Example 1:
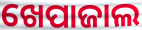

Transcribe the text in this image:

ଖେପାଜାଲ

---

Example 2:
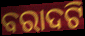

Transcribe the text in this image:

ବରାଦଟି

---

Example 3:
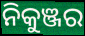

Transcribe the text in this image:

ନିକୁଞ୍ଜର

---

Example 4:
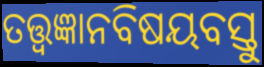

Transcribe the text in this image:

ତତ୍ତ୍ୱଜ୍ଞାନବିଷୟବସ୍ତୁ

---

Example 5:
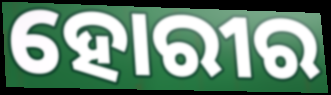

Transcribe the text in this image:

ହୋରୀର